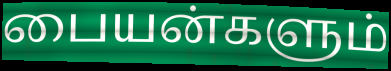
பையன்களும்